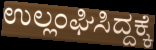
ಉಲ್ಲಂಘಿಸಿದ್ದಕ್ಕೆ